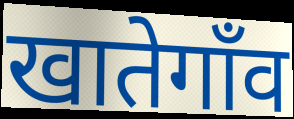
खातेगाँव